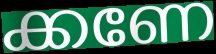
ക്കണേ